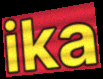
ika